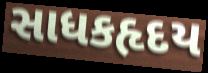
સાધકહૃદય